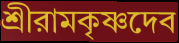
শ্রীরামকৃষ্ণদেব